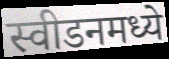
स्वीडनमध्ये